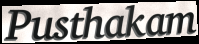
Pusthakam